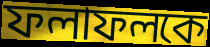
ফলাফলকে